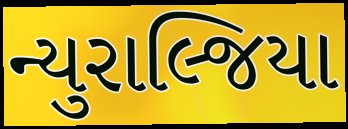
ન્યુરાલ્જિયા